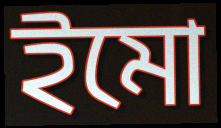
ইমো